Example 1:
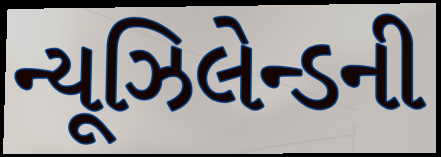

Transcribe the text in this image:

ન્યૂઝિલેન્ડની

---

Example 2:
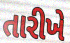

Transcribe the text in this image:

તારીખે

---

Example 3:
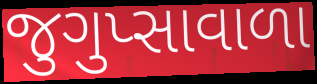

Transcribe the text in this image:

જુગુપ્સાવાળા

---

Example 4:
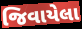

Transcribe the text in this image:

જિવાયેલા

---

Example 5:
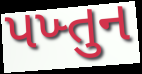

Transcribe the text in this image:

પખ્તુન